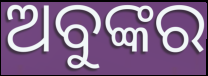
ଅବୁଙ୍କର